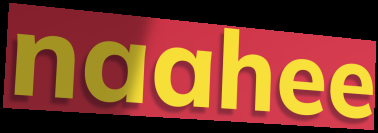
naahee